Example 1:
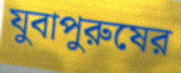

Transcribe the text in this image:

যুবাপুরুষের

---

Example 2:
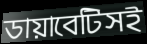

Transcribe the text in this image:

ডায়াবেটিসই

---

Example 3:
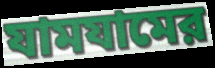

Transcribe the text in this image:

যামযামের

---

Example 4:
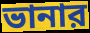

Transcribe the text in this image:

ভানার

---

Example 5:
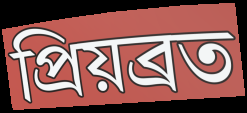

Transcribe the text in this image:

প্রিয়ব্রত